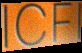
ICFI